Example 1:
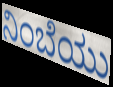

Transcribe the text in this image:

ನಿಂಬೆಯು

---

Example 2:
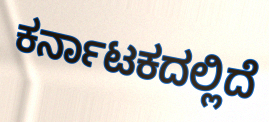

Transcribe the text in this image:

ಕರ್ನಾಟಕದಲ್ಲಿದೆ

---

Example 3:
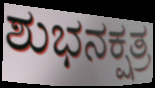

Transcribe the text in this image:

ಶುಭನಕ್ಷತ್ರ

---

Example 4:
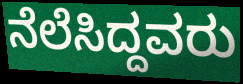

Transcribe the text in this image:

ನೆಲೆಸಿದ್ದವರು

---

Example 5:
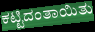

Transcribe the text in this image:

ಕಟ್ಟಿದಂತಾಯಿತು